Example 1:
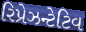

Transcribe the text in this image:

રિપ્રેઝન્ટેટિવ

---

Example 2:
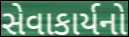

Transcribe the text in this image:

સેવાકાર્યનો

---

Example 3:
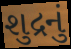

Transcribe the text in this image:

શુદ્રનું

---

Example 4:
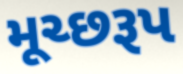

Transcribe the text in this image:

મૂચ્છરૂપ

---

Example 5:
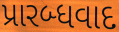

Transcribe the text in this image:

પ્રારબ્ધવાદ